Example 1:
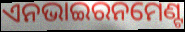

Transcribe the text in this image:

ଏନଭାଇରନମେଣ୍ଟ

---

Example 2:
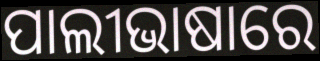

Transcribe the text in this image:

ପାଲୀଭାଷାରେ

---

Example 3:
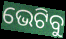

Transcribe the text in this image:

ଭେଟିବୁ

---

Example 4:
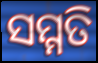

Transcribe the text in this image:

ସମ୍ମତି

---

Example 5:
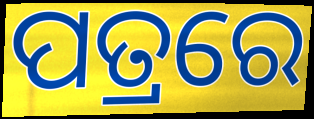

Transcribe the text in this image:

ପତ୍ରରେ